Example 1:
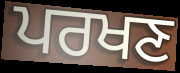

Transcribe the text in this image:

ਪਰਖਣ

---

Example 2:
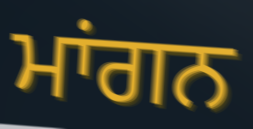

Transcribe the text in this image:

ਮਾਂਗਨ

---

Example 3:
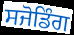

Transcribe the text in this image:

ਸਜੋਡਿੰਗ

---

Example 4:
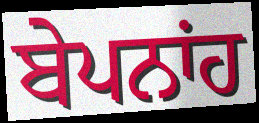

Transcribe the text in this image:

ਬੇਪਨਾਂਹ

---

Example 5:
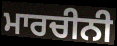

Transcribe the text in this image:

ਮਾਰਚੀਨੀ